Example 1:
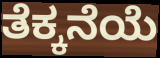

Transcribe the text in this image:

ತೆಕ್ಕನೆಯೆ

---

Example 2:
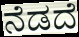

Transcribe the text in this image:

ನೆಡದೆ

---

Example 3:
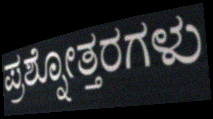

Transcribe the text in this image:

ಪ್ರಶ್ನೋತ್ತರಗಳು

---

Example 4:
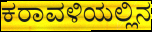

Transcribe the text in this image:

ಕರಾವಳಿಯಲ್ಲಿನ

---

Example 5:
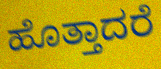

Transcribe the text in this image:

ಹೊತ್ತಾದರೆ